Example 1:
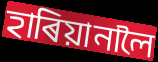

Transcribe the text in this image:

হাৰিয়ানালৈ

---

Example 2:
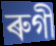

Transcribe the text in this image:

ৰুগী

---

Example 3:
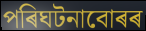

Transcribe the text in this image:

পৰিঘটনাবোৰৰ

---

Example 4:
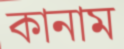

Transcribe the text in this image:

কানাম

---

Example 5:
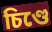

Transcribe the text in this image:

চিণ্ডে